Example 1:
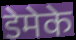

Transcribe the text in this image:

डेमेके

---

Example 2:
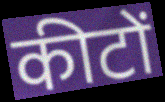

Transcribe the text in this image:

कीटों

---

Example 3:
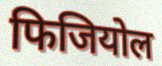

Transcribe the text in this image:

फिजियोल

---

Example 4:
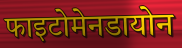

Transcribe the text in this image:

फाइटोमेनडायोन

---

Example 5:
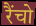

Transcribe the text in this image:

रैंचो